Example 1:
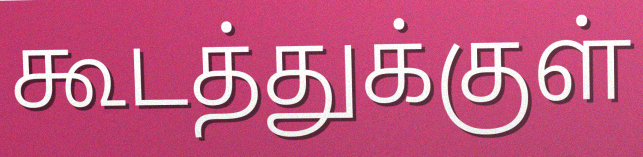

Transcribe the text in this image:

கூடத்துக்குள்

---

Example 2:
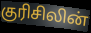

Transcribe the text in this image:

குரிசிலின்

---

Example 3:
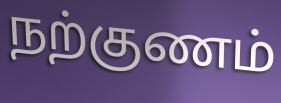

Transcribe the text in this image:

நற்குணம்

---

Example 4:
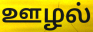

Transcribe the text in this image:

ஊழல்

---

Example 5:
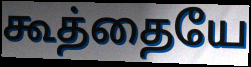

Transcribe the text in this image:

கூத்தையே